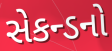
સેકન્ડનો